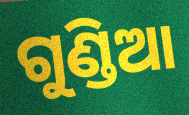
ଗୁଣ୍ଡିଆ